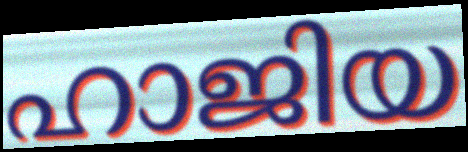
ഹാജിയ